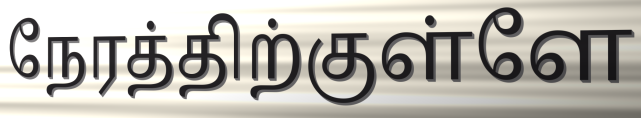
நேரத்திற்குள்ளே